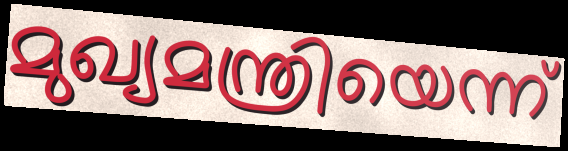
മുഖ്യമന്ത്രിയെന്ന്